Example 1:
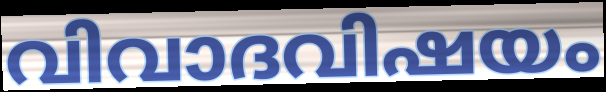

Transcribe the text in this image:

വിവാദവിഷയം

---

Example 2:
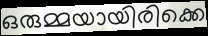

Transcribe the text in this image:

ഒരുമ്മയായിരിക്കെ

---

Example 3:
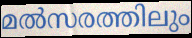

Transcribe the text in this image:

മൽസരത്തിലും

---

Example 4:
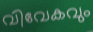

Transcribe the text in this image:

വിവേകവും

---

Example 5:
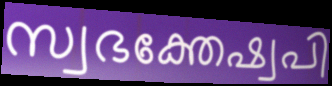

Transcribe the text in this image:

സ്വഭക്തേഷ്വപി